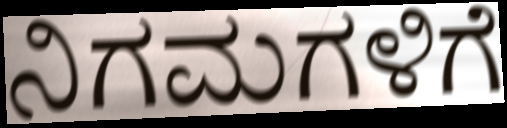
ನಿಗಮಗಳಿಗೆ